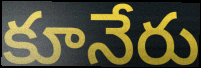
కూనేరు